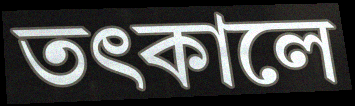
তৎকালে